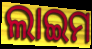
ଲାଇମ